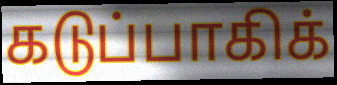
கடுப்பாகிக்